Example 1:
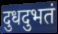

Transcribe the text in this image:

दुधदुभतं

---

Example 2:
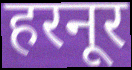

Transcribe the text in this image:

हरनूर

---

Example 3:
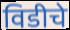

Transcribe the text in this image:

विडीचे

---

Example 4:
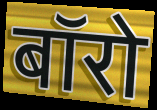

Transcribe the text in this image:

बॉरो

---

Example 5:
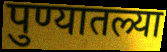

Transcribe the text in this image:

पुण्यातल्या